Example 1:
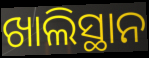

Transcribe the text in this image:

ଖାଲିସ୍ଥାନ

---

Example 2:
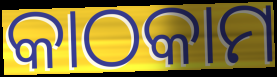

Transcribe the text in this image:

କାଠକାମ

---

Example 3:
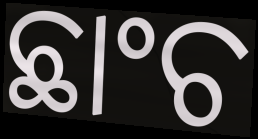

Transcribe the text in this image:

ଛାଂଚ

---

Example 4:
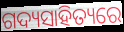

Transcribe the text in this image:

ଗଦ୍ୟସାହିତ୍ୟରେ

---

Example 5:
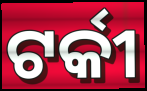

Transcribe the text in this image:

ଟର୍କୀ